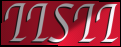
IISII